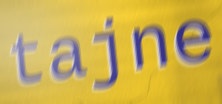
tajne